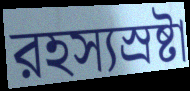
রহস্যস্রষ্টা